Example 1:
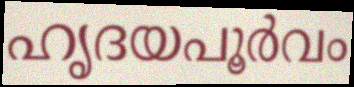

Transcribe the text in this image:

ഹൃദയപൂർവം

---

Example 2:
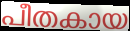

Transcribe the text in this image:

പീതകായ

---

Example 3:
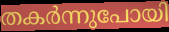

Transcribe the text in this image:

തകർന്നുപോയി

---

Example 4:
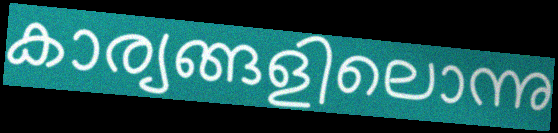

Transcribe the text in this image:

കാര്യങ്ങളിലൊന്നു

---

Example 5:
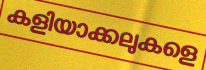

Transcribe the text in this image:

കളിയാക്കലുകളെ